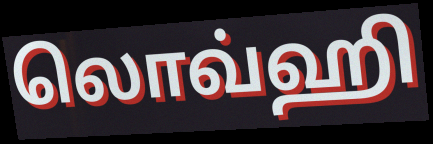
லொவ்ஹி